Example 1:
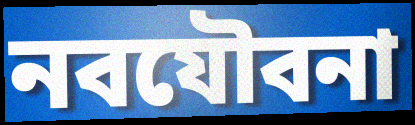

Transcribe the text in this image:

নবযৌবনা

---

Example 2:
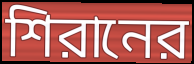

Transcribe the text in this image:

শিরানের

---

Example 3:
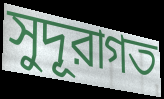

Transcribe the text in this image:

সুদূরাগত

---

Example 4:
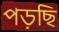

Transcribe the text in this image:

পড়ছি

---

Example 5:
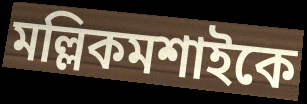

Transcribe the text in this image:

মল্লিকমশাইকে